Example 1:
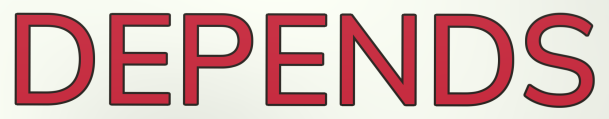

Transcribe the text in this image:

DEPENDS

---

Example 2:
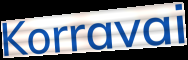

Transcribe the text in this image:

Korravai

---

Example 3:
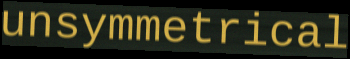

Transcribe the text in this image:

unsymmetrical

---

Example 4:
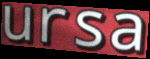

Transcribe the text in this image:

ursa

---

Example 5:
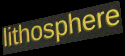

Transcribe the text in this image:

lithosphere